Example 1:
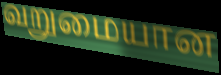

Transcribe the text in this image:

வறுமையான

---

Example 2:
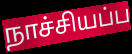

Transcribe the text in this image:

நாச்சியப்ப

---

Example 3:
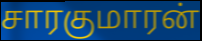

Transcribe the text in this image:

சாரகுமாரன்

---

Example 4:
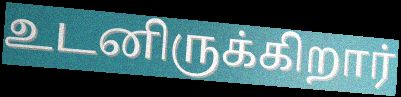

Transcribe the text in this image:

உடனிருக்கிறார்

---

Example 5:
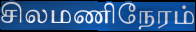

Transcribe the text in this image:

சிலமணிநேரம்